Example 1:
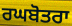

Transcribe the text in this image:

ਰਘਬੋਤਰਾ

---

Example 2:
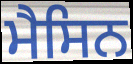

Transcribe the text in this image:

ਮੈਸਿਨ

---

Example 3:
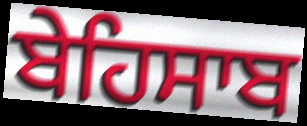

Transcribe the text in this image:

ਬੇਹਿਸਾਬ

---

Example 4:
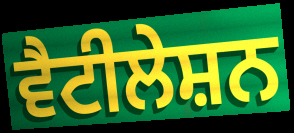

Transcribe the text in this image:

ਵੈਟੀਲੇਸ਼ਨ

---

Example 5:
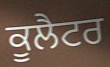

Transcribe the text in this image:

ਕੂਲੈਟਰ